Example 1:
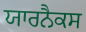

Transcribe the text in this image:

ਯਾਰਨੈਕਸ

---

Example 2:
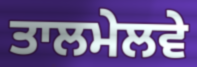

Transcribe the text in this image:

ਤਾਲਮੇਲਵੇ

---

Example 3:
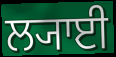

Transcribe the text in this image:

ਲ੍ਯਾਈ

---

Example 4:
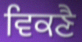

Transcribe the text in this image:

ਵਿਕਣੈ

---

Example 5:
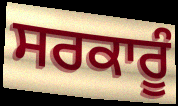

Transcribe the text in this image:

ਸਰਕਾਰੂੰ